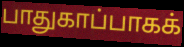
பாதுகாப்பாகக்